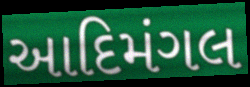
આદિમંગલ